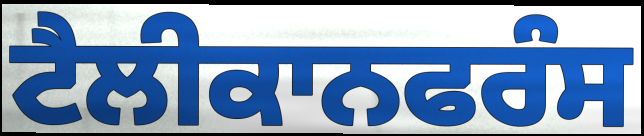
ਟੈਲੀਕਾਨਫਰੰਸ